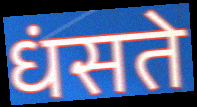
धंसते